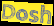
Dosh